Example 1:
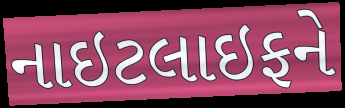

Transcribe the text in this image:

નાઇટલાઇફને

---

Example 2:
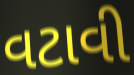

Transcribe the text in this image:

વટાવી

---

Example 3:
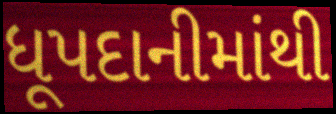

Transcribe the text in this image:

ધૂપદાનીમાંથી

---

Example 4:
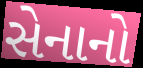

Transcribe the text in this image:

સેનાનો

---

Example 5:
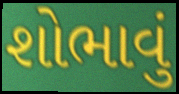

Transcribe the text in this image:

શોભાવું